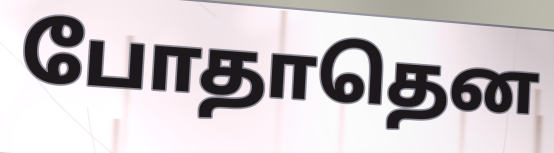
போதாதென